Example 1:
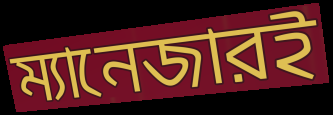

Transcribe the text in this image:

ম্যানেজারই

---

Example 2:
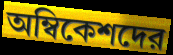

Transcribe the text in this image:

অম্বিকেশদের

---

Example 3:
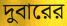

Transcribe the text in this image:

দুবারের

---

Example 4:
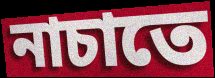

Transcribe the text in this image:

নাচাতে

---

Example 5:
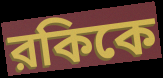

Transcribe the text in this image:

রকিকে